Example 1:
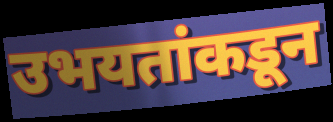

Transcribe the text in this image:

उभयतांकडून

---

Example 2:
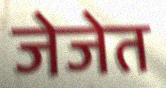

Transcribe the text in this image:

जेजेत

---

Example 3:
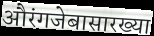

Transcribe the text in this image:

औरंगजेबासारख्या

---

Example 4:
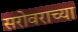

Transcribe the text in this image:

सरोवराच्या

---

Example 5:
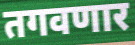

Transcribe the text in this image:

तगवणार